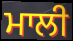
ਮਾਲੀ